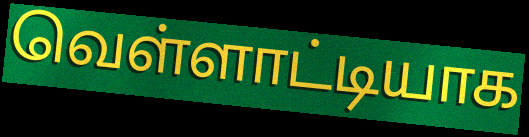
வெள்ளாட்டியாக